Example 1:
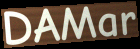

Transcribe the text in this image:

DAMar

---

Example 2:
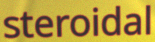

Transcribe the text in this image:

steroidal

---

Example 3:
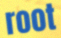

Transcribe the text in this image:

root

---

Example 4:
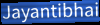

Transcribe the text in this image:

Jayantibhai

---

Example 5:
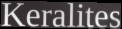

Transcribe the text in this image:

Keralites